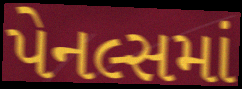
પેનલ્સમાં